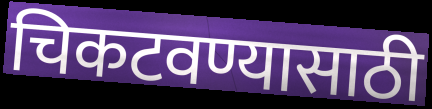
चिकटवण्यासाठी